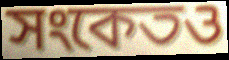
সংকেতও